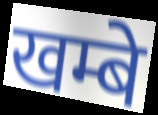
खम्बे